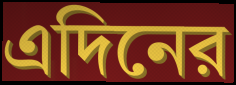
এদিনের